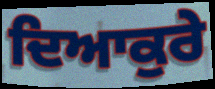
ਦਿਆਕੁਰੇ